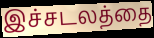
இச்சடலத்தை